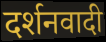
दर्शनवादी